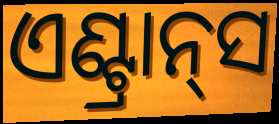
ଏଣ୍ଟ୍ରାନ୍‌ସ